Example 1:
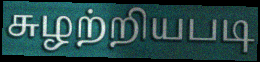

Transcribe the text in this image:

சுழற்றியபடி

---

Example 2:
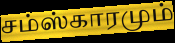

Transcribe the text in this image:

சம்ஸ்காரமும்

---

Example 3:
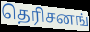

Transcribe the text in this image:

தெரிசனங்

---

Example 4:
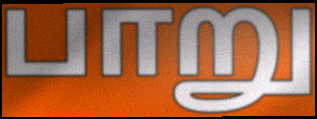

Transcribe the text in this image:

பாறு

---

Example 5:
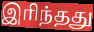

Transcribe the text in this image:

இரிந்தது